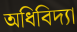
অধিবিদ্যা